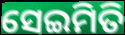
ସେଇମିତି